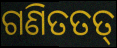
ଗଣିତତତ୍